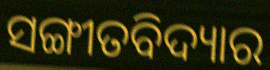
ସଙ୍ଗୀତବିଦ୍ୟାର